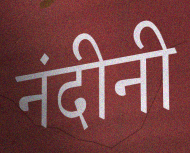
नंदीनी